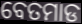
ବେତମାଡ